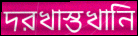
দরখাস্তখানি